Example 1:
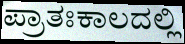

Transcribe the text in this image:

ಪ್ರಾತಃಕಾಲದಲ್ಲಿ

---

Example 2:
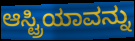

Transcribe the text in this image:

ಆಸ್ಟ್ರಿಯಾವನ್ನು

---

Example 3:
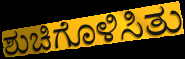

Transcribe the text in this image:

ಶುಚಿಗೊಳಿಸಿತು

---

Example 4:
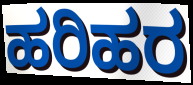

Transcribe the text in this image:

ಹರಿಹರ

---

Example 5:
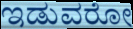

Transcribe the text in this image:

ಇಡುವರೋ